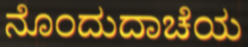
ನೊಂದುದಾಚೆಯ